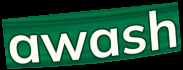
awash